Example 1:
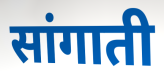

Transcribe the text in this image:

सांगाती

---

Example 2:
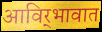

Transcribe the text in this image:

आविर्भावात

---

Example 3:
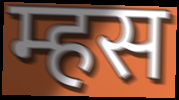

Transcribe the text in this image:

म्हस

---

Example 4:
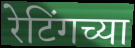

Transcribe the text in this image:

रेटिंगच्या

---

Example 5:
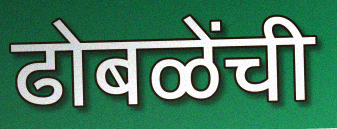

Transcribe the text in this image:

ढोबळेंची